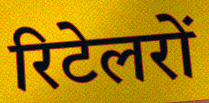
रिटेलरों